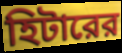
হিটারের